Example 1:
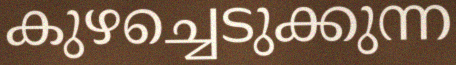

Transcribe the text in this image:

കുഴച്ചെടുക്കുന്ന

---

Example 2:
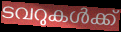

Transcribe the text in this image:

ടവറുകൾക്ക്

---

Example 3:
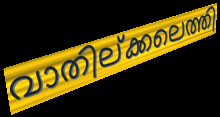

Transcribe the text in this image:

വാതില്ക്കലെത്തി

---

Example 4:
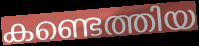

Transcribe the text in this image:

കണ്ടെത്തിയ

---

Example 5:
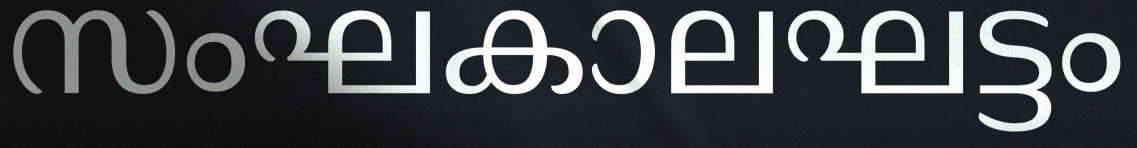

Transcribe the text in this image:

സംഘകാലഘട്ടം